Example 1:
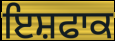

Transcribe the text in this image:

ਇਸ਼ਫਾਕ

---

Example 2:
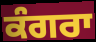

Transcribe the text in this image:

ਕੰਗਰਾ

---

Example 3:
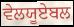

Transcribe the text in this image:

ਵੇਲਯੂਏਬਲ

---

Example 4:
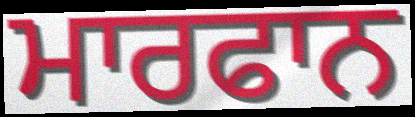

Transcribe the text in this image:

ਮਾਰਫਾਨ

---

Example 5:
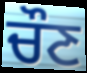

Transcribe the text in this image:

ਚੌਣ